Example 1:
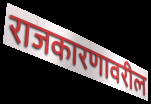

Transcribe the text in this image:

राजकारणावरील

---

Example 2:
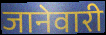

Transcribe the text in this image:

जानेवारी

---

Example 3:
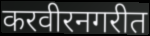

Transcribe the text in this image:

करवीरनगरीत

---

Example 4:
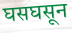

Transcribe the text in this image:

घसघसून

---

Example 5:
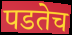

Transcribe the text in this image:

पडतेच